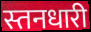
स्‍तनधारी